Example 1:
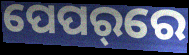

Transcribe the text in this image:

ପେପର୍‌ରେ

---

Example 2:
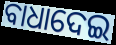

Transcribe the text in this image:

ବାଧାଦେଇ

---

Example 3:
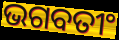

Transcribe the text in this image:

ଭଗବତୀଂ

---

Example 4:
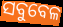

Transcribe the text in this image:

ସବୁବେଳ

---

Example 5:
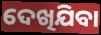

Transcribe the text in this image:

ଦେଖିଯିବା